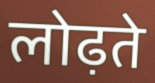
लोढ़ते